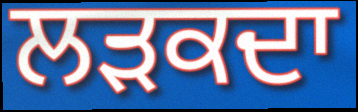
ਲੜਕਦਾ